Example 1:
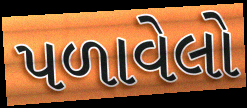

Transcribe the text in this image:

પળાવેલો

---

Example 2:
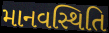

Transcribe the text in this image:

માનવસ્થિતિ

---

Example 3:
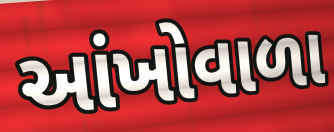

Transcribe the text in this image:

આંખોવાળા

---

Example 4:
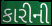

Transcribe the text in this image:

કારીની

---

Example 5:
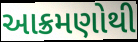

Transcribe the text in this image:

આક્રમણોથી